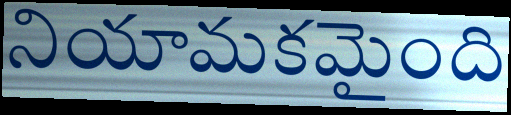
నియామకమైంది